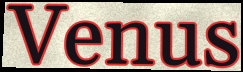
Venus